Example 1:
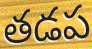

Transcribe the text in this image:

తడప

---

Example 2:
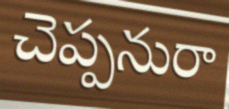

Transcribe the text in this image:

చెప్పనురా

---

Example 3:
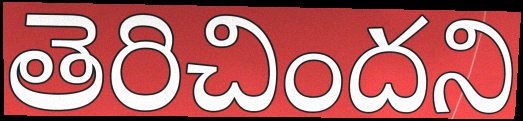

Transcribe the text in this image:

తెరిచిందని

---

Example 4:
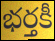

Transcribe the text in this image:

భర్తకీ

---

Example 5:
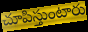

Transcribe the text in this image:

చూపిస్తుంటారు